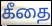
கீதை